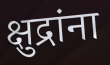
क्षुद्रांना